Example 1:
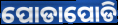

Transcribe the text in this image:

ପୋଡାପୋଡି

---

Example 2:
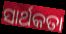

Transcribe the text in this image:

ସାର୍ଥକତା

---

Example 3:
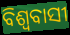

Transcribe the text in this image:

ବିଶ୍ୱବାସୀ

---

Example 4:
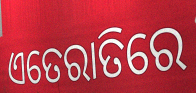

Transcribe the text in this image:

ଏତେରାତିରେ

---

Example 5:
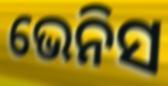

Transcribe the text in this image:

ଭେନିସ